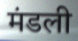
मंडली